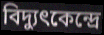
বিদ্যুৎকেন্দ্রে